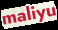
maliyu